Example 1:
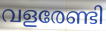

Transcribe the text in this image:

വളരേണ്ടി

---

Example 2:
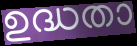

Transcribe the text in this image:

ഉദ്ധതാ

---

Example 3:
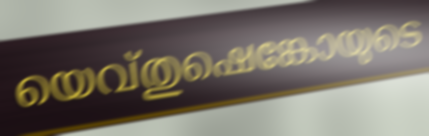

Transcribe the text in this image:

യെവ്തുഷെങ്കോയുടെ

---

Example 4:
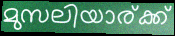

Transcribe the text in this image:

മുസലിയാര്ക്ക്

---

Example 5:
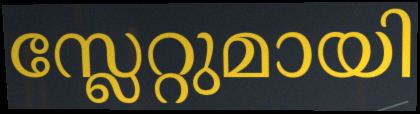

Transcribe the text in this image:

സ്ലേറ്റുമായി